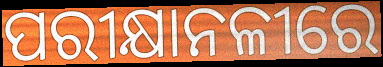
ପରୀକ୍ଷାନଳୀରେ